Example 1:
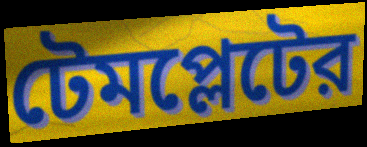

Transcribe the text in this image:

টেমপ্লেটের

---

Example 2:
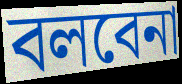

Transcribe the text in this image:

বলবেনা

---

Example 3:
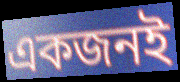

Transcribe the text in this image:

একজনই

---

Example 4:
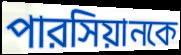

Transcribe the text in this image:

পারসিয়ানকে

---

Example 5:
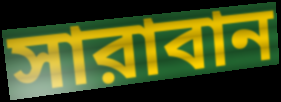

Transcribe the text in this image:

সারাবান